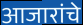
आजारांचे